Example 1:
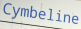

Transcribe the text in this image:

Cymbeline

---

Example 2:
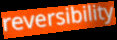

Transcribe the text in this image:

reversibility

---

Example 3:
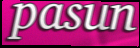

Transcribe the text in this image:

pasun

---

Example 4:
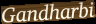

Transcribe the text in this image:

Gandharbi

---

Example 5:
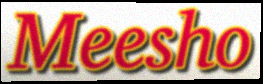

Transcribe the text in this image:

Meesho